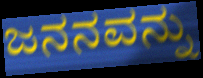
ಜನನವನ್ನು